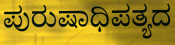
ಪುರುಷಾಧಿಪತ್ಯದ